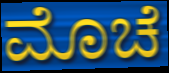
ಮೊಚೆ